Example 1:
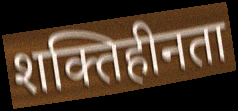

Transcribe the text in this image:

शक्तिहीनता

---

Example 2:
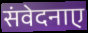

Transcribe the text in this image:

संवेदनाए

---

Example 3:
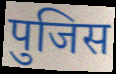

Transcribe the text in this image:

पुजिस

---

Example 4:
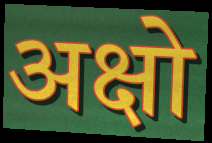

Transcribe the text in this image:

अक्षो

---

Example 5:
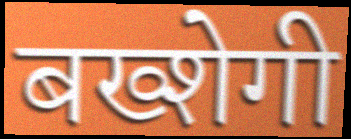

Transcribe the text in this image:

बख्शेगी